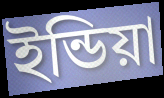
ইন্ডিয়া